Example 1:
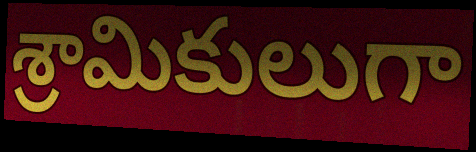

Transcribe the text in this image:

శ్రామికులుగా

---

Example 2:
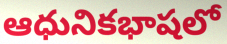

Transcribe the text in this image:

ఆధునికభాషలో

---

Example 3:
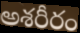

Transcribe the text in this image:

అశరీరం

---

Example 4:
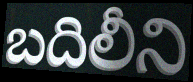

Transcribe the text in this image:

బదిలీని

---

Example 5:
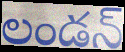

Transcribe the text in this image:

లండన్